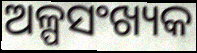
ଅଳ୍ପସଂଖ୍ୟକ